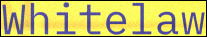
Whitelaw